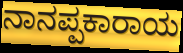
ನಾನಪ್ಪಕಾರಾಯ